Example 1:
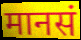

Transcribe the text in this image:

मानसं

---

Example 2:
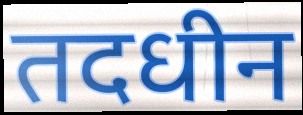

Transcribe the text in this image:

तदधीन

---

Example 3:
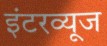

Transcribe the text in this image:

इंटरव्यूज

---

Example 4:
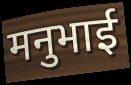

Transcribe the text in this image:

मनुभाई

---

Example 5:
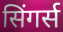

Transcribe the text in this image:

सिंगर्स